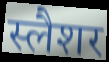
स्लैशर